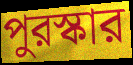
পুরস্কার